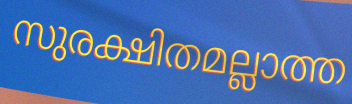
സുരക്ഷിതമല്ലാത്ത